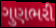
ગુણભરી